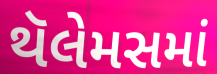
થૅલેમસમાં